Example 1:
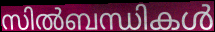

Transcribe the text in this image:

സിൽബന്ധികൾ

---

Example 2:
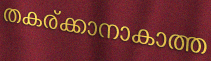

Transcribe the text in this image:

തകര്ക്കാനാകാത്ത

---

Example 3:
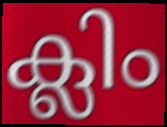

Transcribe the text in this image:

ക്ലിം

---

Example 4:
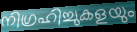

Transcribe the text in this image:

നിഗ്രഹിച്ചുകളയും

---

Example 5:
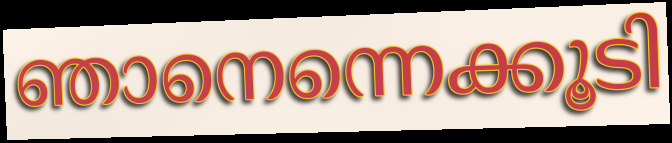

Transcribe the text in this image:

ഞാനെന്നെക്കൂടി